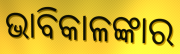
ଭାବିକାଳଙ୍କାର